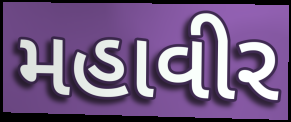
મહાવીર